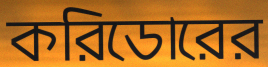
করিডোরের